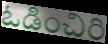
ఓడించిరి